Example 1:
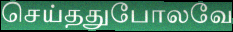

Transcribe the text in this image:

செய்ததுபோலவே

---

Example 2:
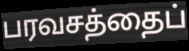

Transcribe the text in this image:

பரவசத்தைப்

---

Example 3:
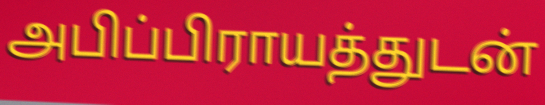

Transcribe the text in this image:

அபிப்பிராயத்துடன்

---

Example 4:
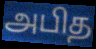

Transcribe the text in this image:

அபித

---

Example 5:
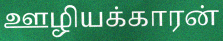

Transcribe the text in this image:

ஊழியக்காரன்